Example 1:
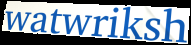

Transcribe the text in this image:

watwriksh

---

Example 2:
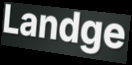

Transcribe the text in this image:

Landge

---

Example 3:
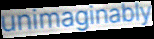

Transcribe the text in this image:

unimaginably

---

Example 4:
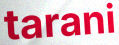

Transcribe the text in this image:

tarani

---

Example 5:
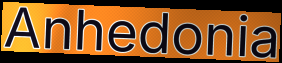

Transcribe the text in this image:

Anhedonia